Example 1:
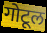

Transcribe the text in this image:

गोटूल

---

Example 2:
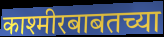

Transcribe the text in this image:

काश्मीरबाबतच्या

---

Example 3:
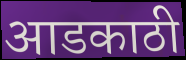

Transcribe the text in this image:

आडकाठी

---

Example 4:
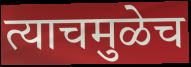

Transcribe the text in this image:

त्याचमुळेच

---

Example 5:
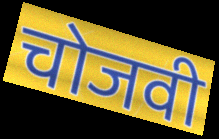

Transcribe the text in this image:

चोजवी